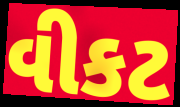
વીકટ